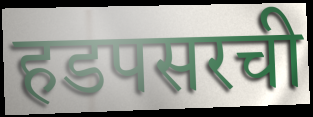
हडपसरची